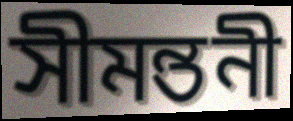
সীমন্তনী